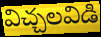
విచ్చలవిడి